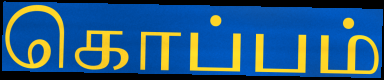
கொப்பம்